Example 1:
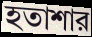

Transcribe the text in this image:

হতাশার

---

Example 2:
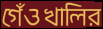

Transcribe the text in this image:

গেঁওখালির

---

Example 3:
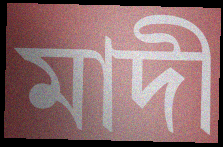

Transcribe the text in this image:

মাদী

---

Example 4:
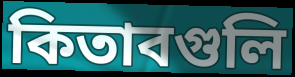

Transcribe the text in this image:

কিতাবগুলি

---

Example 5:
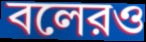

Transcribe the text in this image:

বলেরও